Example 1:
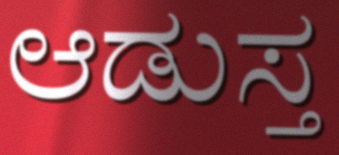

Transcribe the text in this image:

ಆಡುಸ್ತ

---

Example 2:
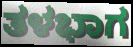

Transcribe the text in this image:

ತಳಭಾಗ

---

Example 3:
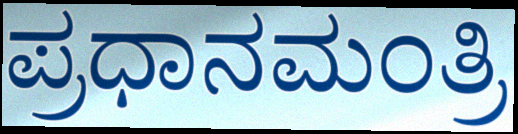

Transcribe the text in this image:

ಪ್ರಧಾನಮಂತ್ರಿ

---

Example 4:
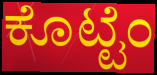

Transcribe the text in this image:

ಕೊಟ್ಟೆಂ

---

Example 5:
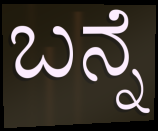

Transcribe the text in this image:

ಬನ್ನೆ